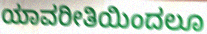
ಯಾವರೀತಿಯಿಂದಲೂ